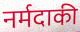
नर्मदाकी